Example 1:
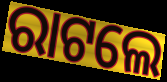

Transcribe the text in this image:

ରାଟଲେ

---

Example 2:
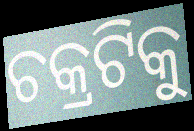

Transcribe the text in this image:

ଚକ୍ରଟିକୁ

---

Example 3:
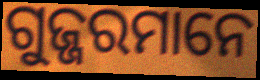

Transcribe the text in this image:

ଗୁଜ୍ଜରମାନେ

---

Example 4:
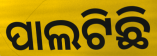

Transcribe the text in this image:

ପାଲଟିଛି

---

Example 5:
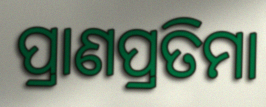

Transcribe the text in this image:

ପ୍ରାଣପ୍ରତିମା